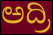
ಅದ್ರಿ